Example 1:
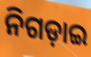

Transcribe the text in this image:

ନିଗଡ଼ାଇ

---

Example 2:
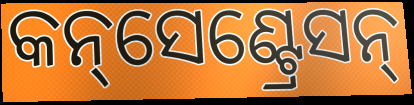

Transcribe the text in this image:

କନ୍‌ସେଣ୍ଟ୍ରେସନ୍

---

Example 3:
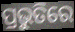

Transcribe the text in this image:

ପ୍ରଭୁତିରେ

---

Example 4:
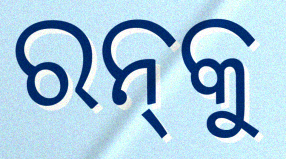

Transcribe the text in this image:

ରନ୍‌କୁ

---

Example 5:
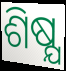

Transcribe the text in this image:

ଶିଷ୍ଯ